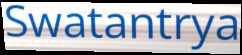
Swatantrya